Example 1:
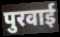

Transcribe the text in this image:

पुरवाई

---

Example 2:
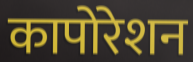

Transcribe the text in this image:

कापोरेशन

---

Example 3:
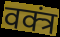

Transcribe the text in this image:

वक्त्रं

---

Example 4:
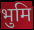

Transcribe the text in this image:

भुमि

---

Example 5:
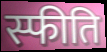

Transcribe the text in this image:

स्‍फीति